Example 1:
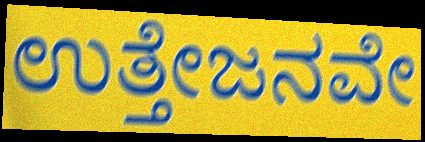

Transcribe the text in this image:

ಉತ್ತೇಜನವೇ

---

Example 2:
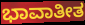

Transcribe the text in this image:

ಭಾವಾತೀತ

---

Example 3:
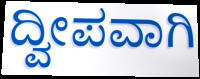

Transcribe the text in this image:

ದ್ವೀಪವಾಗಿ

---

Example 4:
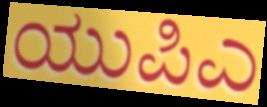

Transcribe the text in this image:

ಯುಪಿಎ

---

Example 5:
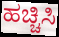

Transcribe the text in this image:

ಹಚ್ಚಿಸಿ